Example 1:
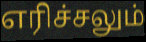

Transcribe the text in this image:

எரிச்சலும்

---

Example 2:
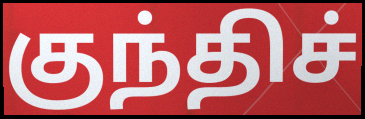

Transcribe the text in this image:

குந்திச்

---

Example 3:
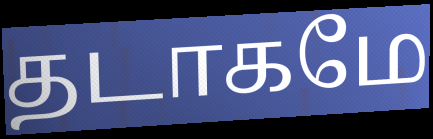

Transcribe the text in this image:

தடாகமே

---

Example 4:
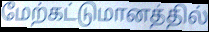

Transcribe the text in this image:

மேற்கட்டுமானத்தில்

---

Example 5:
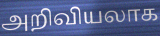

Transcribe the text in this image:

அறிவியலாக